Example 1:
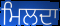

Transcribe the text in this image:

ਮਿਲਦਾ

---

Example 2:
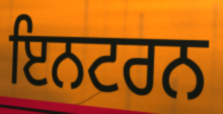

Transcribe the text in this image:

ਇਨਟਰਨ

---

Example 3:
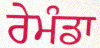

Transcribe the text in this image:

ਰੇਮੰਡਾ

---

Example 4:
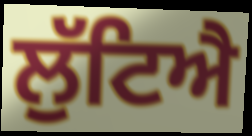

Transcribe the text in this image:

ਲੁੱਟਿਐ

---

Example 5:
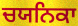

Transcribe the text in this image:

ਚਯਨਿਕਾ